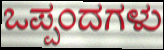
ಒಪ್ಪಂದಗಳು